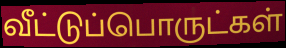
வீட்டுப்பொருட்கள்